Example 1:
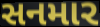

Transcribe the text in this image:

સનમાર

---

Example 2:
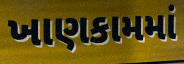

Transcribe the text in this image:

ખાણકામમાં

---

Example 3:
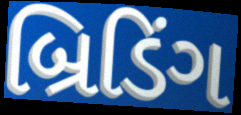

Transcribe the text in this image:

બ્રિડિંગ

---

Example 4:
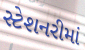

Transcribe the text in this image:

સ્ટેશનરીમાં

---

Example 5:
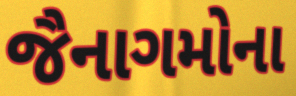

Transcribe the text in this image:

જૈનાગમોના